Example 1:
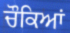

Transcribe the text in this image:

ਚੌਕਿਆਂ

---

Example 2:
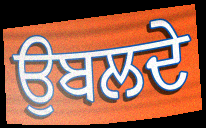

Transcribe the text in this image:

ਉਬਲਦੇ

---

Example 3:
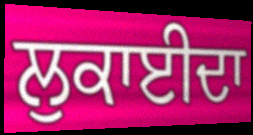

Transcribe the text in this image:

ਲੁਕਾਈਦਾ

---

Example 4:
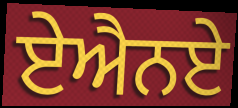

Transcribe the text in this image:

ਏਐਨਏ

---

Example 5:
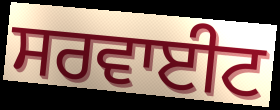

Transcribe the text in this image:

ਸਰਵਾਈਟ